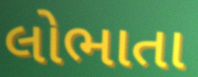
લોભાતા